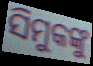
ସିମୁକଙ୍କୁ